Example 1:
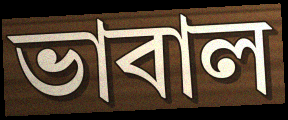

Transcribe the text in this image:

ভাবাল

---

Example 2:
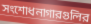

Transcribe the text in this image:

সংশোধনাগারগুলির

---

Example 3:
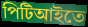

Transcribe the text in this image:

পিটিআইতে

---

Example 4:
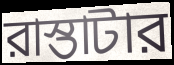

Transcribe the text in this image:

রাস্তাটার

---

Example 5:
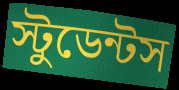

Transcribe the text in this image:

স্টুডেন্টস